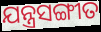
ଯନ୍ତ୍ରସଙ୍ଗୀତ